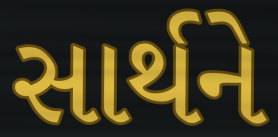
સાર્થને